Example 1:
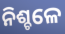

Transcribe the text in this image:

ନିଶ୍ଚଳେ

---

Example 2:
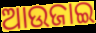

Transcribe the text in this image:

ଆଉଜାଇ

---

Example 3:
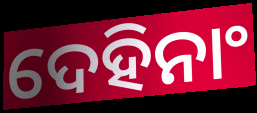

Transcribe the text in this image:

ଦେହିନାଂ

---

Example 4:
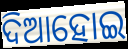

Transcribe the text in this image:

ଦିଆହୋଇ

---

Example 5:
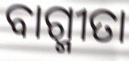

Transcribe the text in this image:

ବାଗ୍ମୀତା